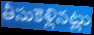
తీసుకెళ్లినట్లు